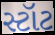
સ્ટૉટ